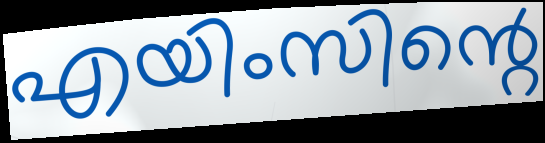
എയിംസിന്റെ